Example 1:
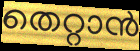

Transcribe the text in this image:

തെറ്റാൻ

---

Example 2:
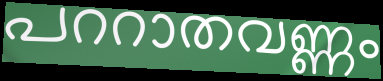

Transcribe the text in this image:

പററാതവണ്ണം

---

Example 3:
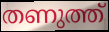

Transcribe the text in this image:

തണുത്ത്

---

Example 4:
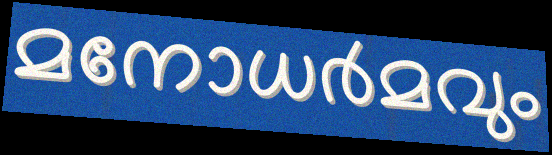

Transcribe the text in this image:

മനോധർമവും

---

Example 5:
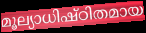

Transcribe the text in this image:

മൂല്യാധിഷ്ഠിതമായ